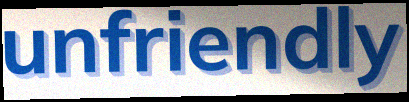
unfriendly